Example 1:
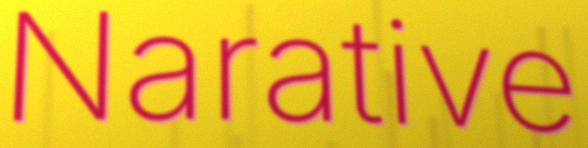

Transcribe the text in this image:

Narative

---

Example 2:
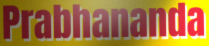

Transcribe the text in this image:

Prabhananda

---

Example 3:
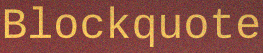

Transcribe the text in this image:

Blockquote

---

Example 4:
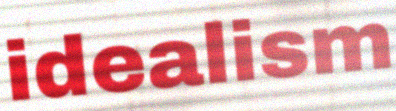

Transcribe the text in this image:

idealism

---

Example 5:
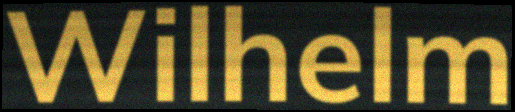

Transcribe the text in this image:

Wilhelm